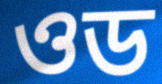
ওড